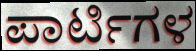
ಪಾರ್ಟಿಗಳ